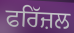
ਫਰਿੱਜ਼ਲ